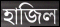
হাজিল